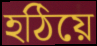
হঠিয়ে